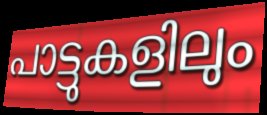
പാട്ടുകളിലും